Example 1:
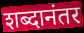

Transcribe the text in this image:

शब्दानंतर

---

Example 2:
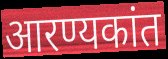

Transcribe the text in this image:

आरण्यकांत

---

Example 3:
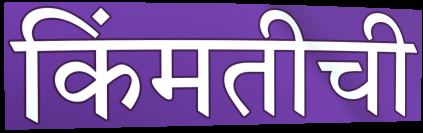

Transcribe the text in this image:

किंमतीची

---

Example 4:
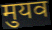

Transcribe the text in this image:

मुयव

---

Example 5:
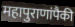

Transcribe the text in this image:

महापुराणांपैकी